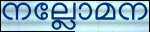
നല്ലോമന